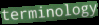
terminology